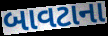
બાવટાના